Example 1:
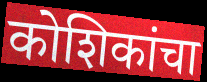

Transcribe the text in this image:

कोशिकांचा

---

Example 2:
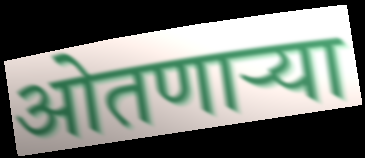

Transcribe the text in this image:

ओतणाऱ्या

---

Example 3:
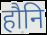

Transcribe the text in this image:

हौनि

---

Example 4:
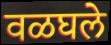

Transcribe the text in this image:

वळघले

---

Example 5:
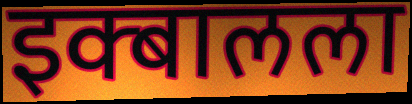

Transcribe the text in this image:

इक्बालला